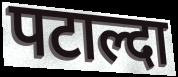
पटाल्दा